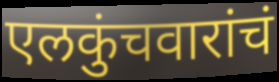
एलकुंचवारांचं